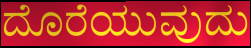
ದೊರೆಯುವುದು